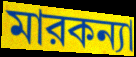
মারকন্যা